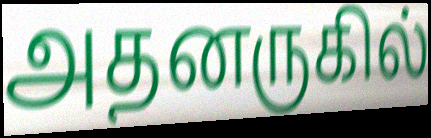
அதனருகில்